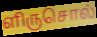
ளிருசொல்